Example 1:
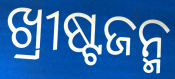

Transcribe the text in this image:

ଖ୍ରୀଷ୍ଟଜନ୍ମ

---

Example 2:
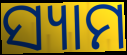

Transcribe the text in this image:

ସ୍ୟାମ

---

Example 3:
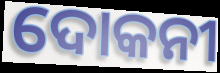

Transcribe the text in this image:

ଦୋକନୀ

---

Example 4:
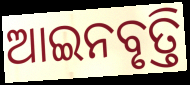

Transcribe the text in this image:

ଆଇନବୃତ୍ତି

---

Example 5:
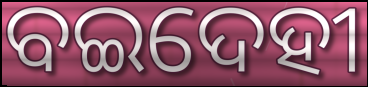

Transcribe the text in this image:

ବଇଦେହୀ